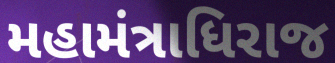
મહામંત્રાધિરાજ